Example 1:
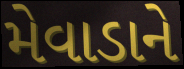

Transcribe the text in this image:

મેવાડાને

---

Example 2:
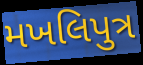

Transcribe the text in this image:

મખલિપુત્ર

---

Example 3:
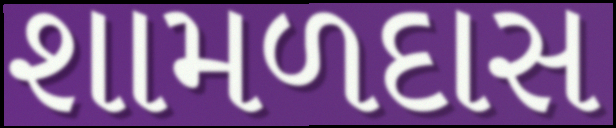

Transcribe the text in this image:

શામળદાસ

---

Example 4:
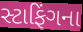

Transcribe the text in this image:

સ્ટાફિંગના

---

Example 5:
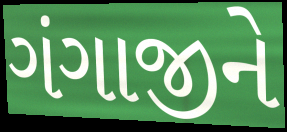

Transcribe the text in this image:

ગંગાજીને